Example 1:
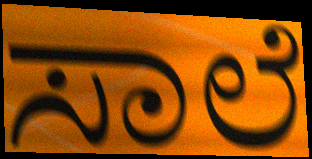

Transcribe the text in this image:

ಸಾಲೆ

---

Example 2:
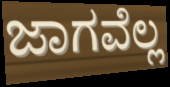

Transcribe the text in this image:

ಜಾಗವೆಲ್ಲ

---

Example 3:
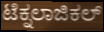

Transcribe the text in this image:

ಟೆಕ್ನಲಾಜಿಕಲ್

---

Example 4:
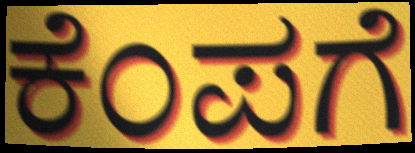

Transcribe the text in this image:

ಕೆಂಪಗೆ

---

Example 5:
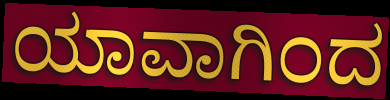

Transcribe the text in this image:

ಯಾವಾಗಿಂದ